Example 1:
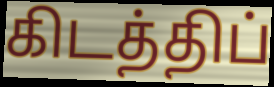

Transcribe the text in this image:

கிடத்திப்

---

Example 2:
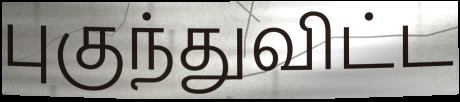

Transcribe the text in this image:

புகுந்துவிட்ட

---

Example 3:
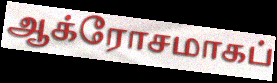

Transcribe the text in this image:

ஆக்ரோசமாகப்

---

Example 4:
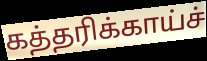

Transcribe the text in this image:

கத்தரிக்காய்ச்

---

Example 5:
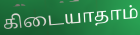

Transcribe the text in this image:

கிடையாதாம்